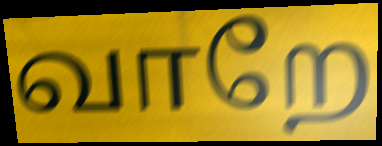
வாறே